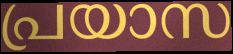
പ്രയാസ